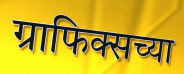
ग्राफिक्सच्या